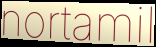
nortamil